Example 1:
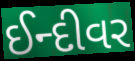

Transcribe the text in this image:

ઈન્દીવર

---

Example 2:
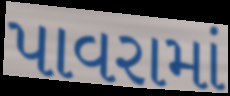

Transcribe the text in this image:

પાવરામાં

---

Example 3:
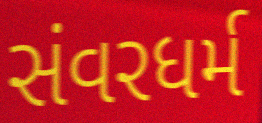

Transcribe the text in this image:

સંવરધર્મ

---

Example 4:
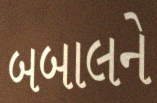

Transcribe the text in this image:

બબાલને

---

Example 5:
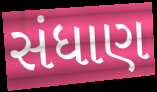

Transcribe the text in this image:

સંધાણ